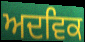
ਅਦਵਿਕ